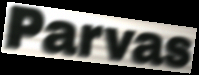
Parvas